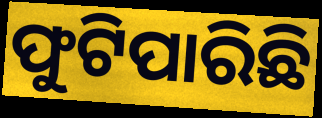
ଫୁଟିପାରିଛି